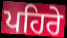
ਪਹਿਰੇ